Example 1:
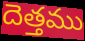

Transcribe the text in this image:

దెత్తము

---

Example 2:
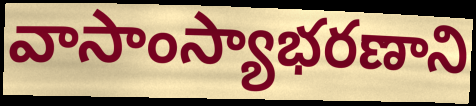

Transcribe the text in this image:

వాసాంస్యాభరణాని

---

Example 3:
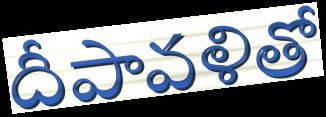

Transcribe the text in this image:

దీపావళితో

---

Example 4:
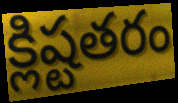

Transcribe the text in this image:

క్లిష్టతరం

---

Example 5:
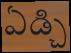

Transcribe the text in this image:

ఏడ్చి